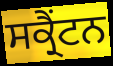
ਸਕ੍ਰੈਂਟਨ